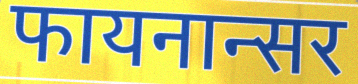
फायनान्सर